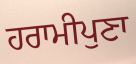
ਹਰਾਮੀਪੁਣਾ